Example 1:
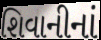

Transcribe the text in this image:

શિવાનીનાં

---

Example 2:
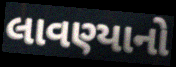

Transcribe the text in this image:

લાવણ્યાનો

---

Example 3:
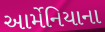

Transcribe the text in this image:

આર્મેનિયાના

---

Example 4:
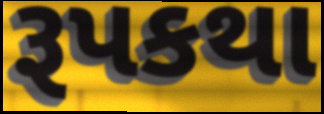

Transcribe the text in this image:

રૂપકથા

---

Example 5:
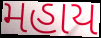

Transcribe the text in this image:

મહાય